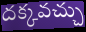
దక్కవచ్చు